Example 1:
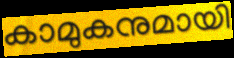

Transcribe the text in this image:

കാമുകനുമായി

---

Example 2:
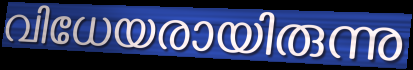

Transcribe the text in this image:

വിധേയരായിരുന്നു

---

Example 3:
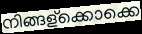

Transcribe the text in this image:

നിങ്ങള്ക്കൊക്കെ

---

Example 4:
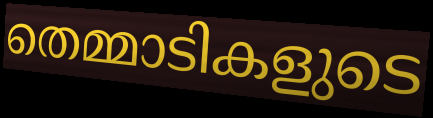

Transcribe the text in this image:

തെമ്മാടികളുടെ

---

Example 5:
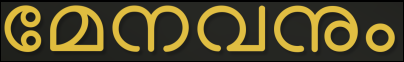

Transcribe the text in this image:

മേനവനും